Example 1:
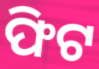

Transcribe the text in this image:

ଫିଟ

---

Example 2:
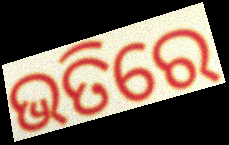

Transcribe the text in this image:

ଭତିରେ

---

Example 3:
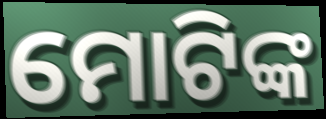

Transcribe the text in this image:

ମୋଟିଙ୍କ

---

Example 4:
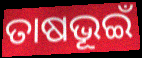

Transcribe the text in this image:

ତାଷଭୂଇଁ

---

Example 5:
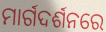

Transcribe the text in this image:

ମାର୍ଗଦର୍ଶନରେ